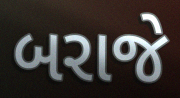
બરાજે